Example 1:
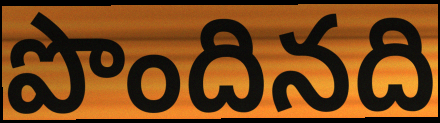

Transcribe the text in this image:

పొందినది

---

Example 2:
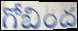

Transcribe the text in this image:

గోబింద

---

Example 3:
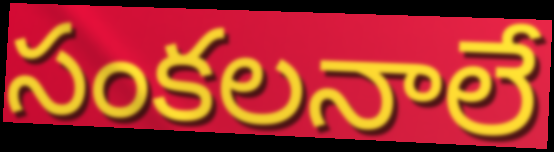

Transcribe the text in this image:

సంకలనాలే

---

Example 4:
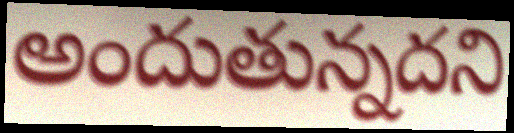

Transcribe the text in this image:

అందుతున్నదని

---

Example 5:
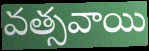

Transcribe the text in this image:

వత్సవాయి